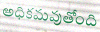
అధికమవుతోంది